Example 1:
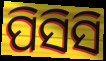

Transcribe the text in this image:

ପିସିସି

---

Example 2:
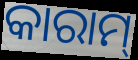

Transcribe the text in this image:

କାରାମ୍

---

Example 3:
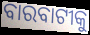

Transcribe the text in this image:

ବାରବାଟୀକୁ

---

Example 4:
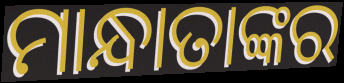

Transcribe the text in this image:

ମାନ୍ଧାତାଙ୍କର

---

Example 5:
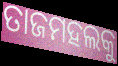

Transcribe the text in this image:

ତାଜମହଲକୁ